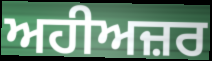
ਅਹੀਅਜ਼ਰ